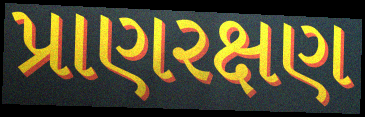
પ્રાણરક્ષણ